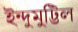
ইন্দুমুট্টিল